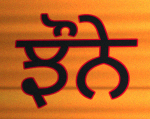
ਝੌਨੇ